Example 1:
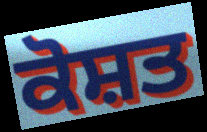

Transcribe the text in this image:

ਕੋਸ਼ਤ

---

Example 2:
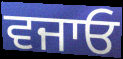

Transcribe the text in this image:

ਵਜਾਓ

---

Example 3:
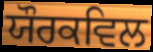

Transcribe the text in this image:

ਯੌਰਕਵਿਲ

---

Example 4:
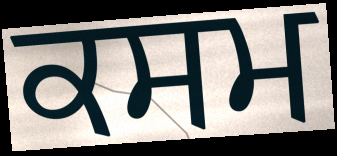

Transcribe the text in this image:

ਕਸਮ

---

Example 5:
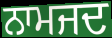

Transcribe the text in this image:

ਨਾਮਜਦ